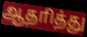
ஆதரித்து